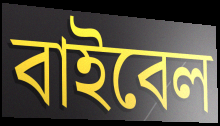
বাইবেল